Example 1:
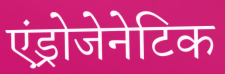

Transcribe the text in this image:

एंड्रोजेनेटिक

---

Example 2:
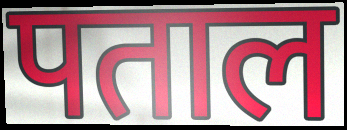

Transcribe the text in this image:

पताल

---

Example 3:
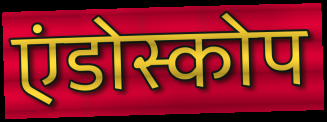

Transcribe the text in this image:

एंडोस्कोप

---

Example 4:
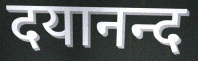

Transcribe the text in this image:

दयानन्द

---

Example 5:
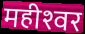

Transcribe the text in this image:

महीश्वर